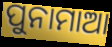
ପୁନାମାଆ